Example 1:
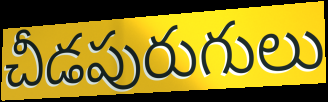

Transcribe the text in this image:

చీడపురుగులు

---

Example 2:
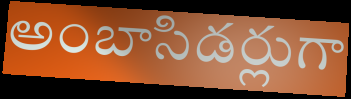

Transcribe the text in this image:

అంబాసిడర్లుగా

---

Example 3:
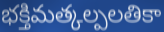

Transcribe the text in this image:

భక్తిమత్కల్పలతికా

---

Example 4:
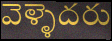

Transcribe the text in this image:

వెళ్ళెదరు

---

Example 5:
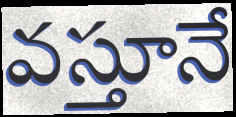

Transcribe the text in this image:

వస్తూనే